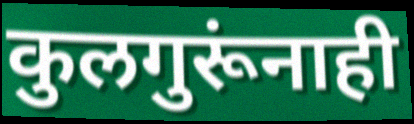
कुलगुरूंनाही